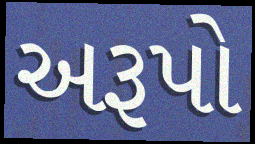
અરૂપો